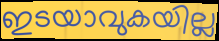
ഇടയാവുകയില്ല